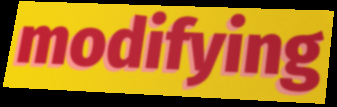
modifying